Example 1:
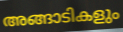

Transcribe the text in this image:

അങ്ങാടികളും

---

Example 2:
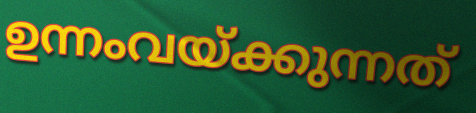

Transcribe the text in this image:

ഉന്നംവയ്ക്കുന്നത്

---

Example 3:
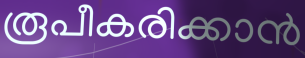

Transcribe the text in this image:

രൂപീകരിക്കാൻ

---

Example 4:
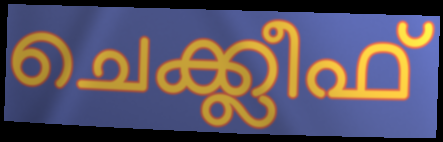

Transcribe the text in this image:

ചെക്ക്ലീഫ്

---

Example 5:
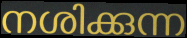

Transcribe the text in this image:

നശിക്കുന്ന